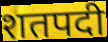
शतपदी